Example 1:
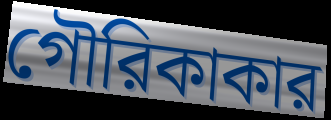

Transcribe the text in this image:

গৌরিকাকার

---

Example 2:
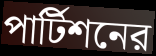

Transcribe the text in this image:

পার্টিশনের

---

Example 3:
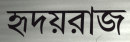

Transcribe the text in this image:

হৃদয়রাজ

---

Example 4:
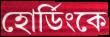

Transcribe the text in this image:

হোর্ডিংকে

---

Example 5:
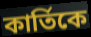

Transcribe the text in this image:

কার্তিকে